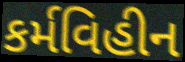
કર્મવિહીન